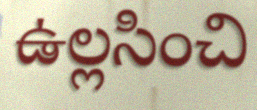
ఉల్లసించి